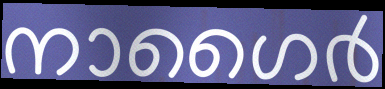
നാഗൈർ